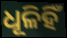
ଧୂଳିହିଁ